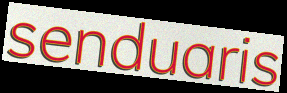
senduaris